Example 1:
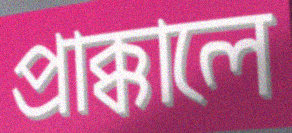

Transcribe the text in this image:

প্রাক্কালে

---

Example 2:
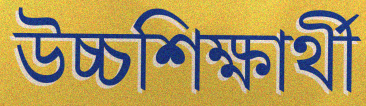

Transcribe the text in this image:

উচ্চশিক্ষার্থী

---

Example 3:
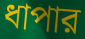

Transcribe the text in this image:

ধাপার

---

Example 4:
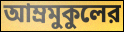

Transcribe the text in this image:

আম্রমুকুলের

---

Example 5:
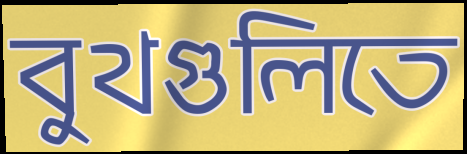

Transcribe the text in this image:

বুথগুলিতে